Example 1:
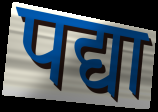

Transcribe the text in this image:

पद्या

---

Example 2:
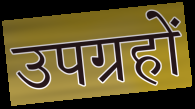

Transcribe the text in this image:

उपग्रहों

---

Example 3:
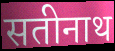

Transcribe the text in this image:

सतीनाथ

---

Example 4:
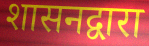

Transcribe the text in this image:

शासनद्वारा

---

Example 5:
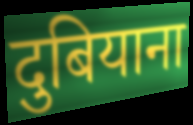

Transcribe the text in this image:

दुबियाना